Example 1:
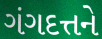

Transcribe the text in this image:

ગંગદત્તને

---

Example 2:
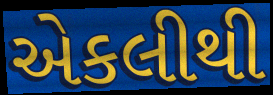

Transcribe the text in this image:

એકલીથી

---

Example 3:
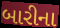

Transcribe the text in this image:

બારીના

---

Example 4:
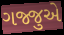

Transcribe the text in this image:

ગજ્જુએ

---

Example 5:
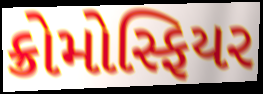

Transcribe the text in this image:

ક્રોમોસ્ફિયર